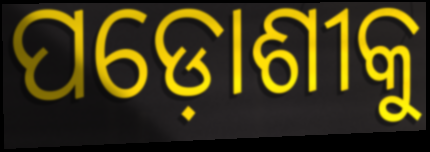
ପଡ଼ୋଶୀକୁ